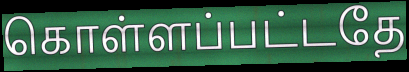
கொள்ளப்பட்டதே